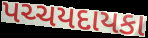
પચ્ચયદાયકા